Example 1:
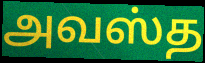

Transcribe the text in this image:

அவஸ்த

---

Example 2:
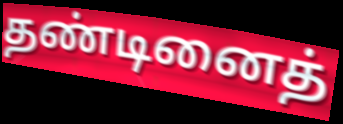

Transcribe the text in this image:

தண்டினைத்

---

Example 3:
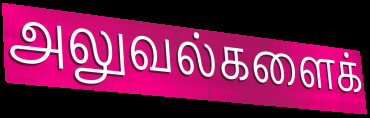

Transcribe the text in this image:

அலுவல்களைக்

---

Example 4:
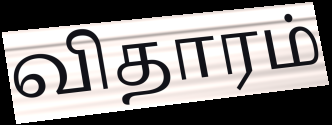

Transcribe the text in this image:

விதாரம்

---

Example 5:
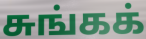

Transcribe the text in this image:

சுங்கக்